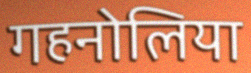
गहनोलिया